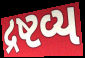
દ્રષ્ટવ્ય